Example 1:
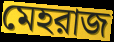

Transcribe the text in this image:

মেহরাজ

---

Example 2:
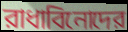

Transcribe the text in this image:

রাধাবিনোদের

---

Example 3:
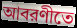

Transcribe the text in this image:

আবরণীতে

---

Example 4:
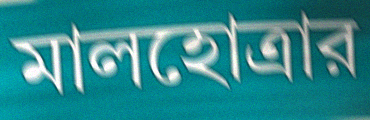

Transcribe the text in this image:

মালহোত্রার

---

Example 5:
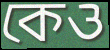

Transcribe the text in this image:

কেও